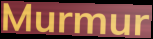
Murmur